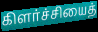
கிளர்ச்சியைத்